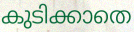
കുടിക്കാതെ